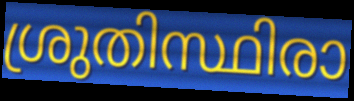
ശ്രുതിസ്ഥിരാ